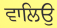
ਵਾਲਿਉ